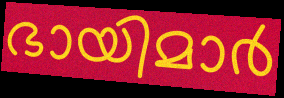
ഭായിമാർ